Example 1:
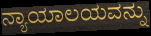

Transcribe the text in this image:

ನ್ಯಾಯಾಲಯವನ್ನು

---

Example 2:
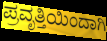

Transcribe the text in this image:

ಪ್ರವೃತ್ತಿಯಿಂದಾಗಿ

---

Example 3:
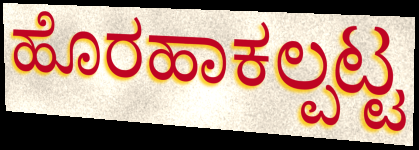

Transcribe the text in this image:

ಹೊರಹಾಕಲ್ಪಟ್ಟ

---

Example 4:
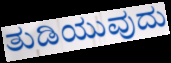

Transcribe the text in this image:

ತುಡಿಯುವುದು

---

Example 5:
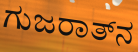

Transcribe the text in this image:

ಗುಜರಾತ್‌ನ